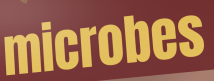
microbes